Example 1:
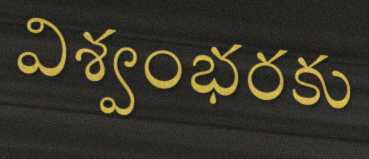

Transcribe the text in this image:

విశ్వంభరకు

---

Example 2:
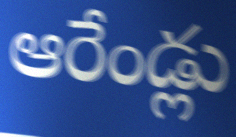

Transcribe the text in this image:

ఆరేండ్లు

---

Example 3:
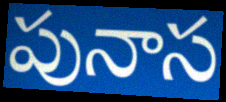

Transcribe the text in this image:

పునాస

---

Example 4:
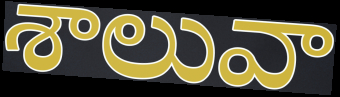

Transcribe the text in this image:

శాలువా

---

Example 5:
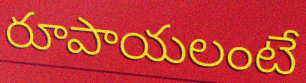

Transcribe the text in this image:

రూపాయలంటే